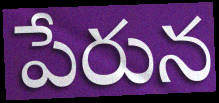
పేరున